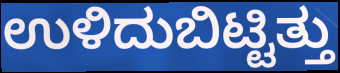
ಉಳಿದುಬಿಟ್ಟಿತ್ತು